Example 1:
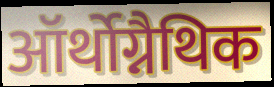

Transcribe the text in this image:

ऑर्थोग्नैथिक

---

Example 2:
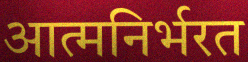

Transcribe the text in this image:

आत्मनिर्भरत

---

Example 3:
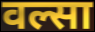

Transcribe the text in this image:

वल्सा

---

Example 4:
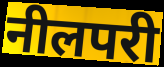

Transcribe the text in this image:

नीलपरी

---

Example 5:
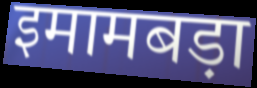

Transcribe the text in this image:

इमामबड़ा